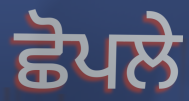
ਛੋਪਲੇ